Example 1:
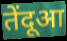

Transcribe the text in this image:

तेंदूआ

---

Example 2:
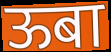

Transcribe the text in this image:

ऊबा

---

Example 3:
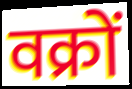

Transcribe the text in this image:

वक्रों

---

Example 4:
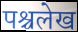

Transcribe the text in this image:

पश्चलेख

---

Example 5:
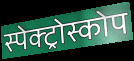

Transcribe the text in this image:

स्पेक्ट्रोस्कोप